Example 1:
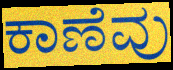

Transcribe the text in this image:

ಕಾಣೆವು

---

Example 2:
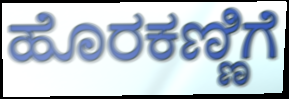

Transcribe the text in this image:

ಹೊರಕಣ್ಣಿಗೆ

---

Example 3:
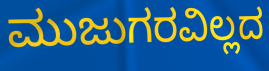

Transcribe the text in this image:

ಮುಜುಗರವಿಲ್ಲದ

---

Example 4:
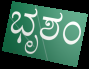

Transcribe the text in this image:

ಭೃಶಂ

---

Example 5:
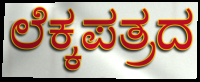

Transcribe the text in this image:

ಲೆಕ್ಕಪತ್ರದ